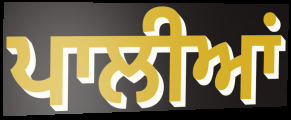
ਪਾਲੀਆਂ